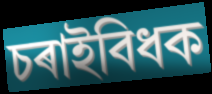
চৰাইবিধক